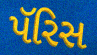
પૅરિસ